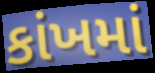
કાંખમાં